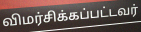
விமர்சிக்கப்பட்டவர்